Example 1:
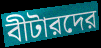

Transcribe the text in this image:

বীটারদের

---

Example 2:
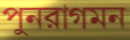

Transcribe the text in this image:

পুনরাগমন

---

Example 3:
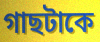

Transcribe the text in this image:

গাছটাকে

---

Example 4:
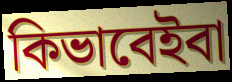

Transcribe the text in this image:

কিভাবেইবা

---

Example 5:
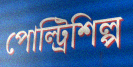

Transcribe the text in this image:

পোল্ট্রিশিল্প